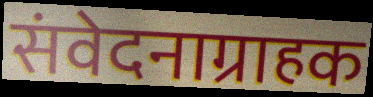
संवेदनाग्राहक